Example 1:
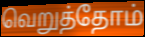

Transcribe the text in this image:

வெறுத்தோம்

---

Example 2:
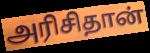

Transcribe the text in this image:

அரிசிதான்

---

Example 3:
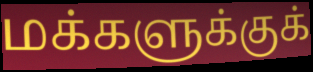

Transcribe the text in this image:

மக்களுக்குக்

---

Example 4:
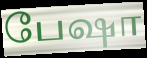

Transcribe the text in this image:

பேஷா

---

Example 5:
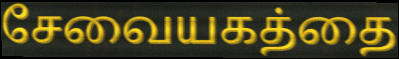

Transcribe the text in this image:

சேவையகத்தை